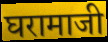
घरामाजी